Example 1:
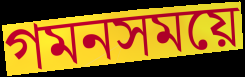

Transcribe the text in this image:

গমনসময়ে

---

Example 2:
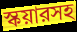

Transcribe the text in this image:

স্কয়ারসহ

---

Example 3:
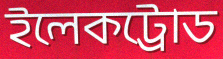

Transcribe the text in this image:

ইলেকট্রোড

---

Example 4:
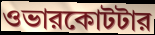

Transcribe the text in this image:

ওভারকোটটার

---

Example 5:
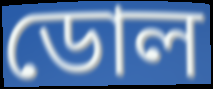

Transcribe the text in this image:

ডোল